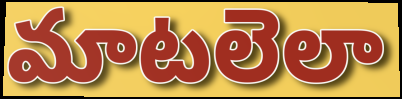
మాటలెలా